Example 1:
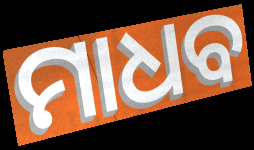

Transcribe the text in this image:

ମାଧବ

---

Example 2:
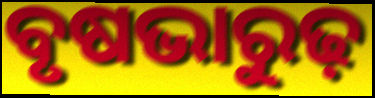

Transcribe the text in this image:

ବୃଷଭାରୁଢ଼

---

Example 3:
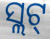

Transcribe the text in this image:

ସ୍ଲଟ୍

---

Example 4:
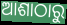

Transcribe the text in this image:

ଆଶାଠାରୁ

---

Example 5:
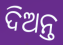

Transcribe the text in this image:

ଦିଅନ୍ତ